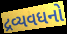
દ્રવ્યવધનો